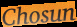
Chosun